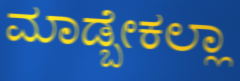
ಮಾಡ್ಬೇಕಲ್ಲಾ